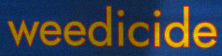
weedicide